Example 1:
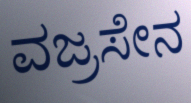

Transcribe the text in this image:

ವಜ್ರಸೇನ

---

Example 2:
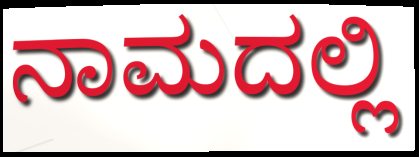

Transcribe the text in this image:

ನಾಮದಲ್ಲಿ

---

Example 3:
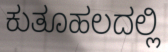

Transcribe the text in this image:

ಕುತೂಹಲದಲ್ಲಿ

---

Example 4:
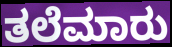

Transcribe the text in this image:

ತಲೆಮಾರು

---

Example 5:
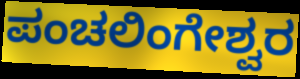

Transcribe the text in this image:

ಪಂಚಲಿಂಗೇಶ್ವರ